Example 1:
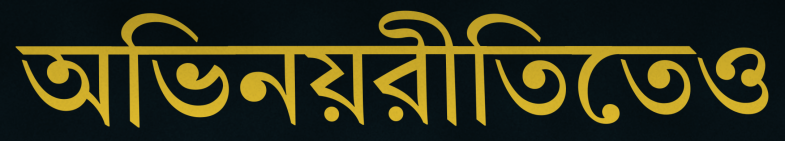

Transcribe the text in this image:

অভিনয়রীতিতেও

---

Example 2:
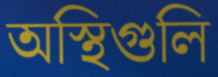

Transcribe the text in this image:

অস্থিগুলি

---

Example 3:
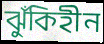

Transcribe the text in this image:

ঝুঁকিহীন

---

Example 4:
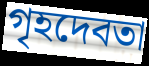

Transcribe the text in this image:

গৃহদেবতা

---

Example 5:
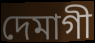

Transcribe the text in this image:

দেমাগী